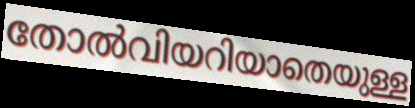
തോൽവിയറിയാതെയുള്ള